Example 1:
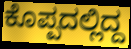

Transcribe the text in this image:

ಕೊಪ್ಪದಲ್ಲಿದ್ದ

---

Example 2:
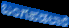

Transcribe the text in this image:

ಬಂಗಪಡಲಾರೆ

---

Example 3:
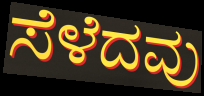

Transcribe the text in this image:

ಸೆಳೆದವು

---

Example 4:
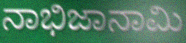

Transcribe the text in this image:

ನಾಭಿಜಾನಾಮಿ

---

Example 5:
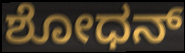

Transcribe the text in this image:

ಶೋಧನ್